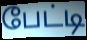
பேட்டி